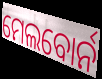
ମେଲବୋର୍ନ